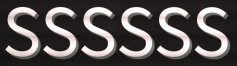
SSSSSS